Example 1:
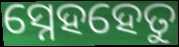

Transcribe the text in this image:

ସ୍ନେହହେତୁ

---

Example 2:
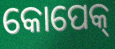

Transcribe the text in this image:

କୋପେକ୍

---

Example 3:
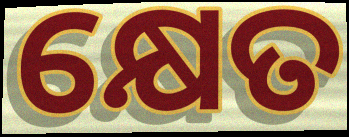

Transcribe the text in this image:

କ୍ଷେତ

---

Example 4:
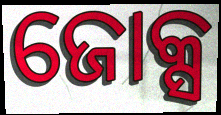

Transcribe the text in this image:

ଜୋକ୍ସ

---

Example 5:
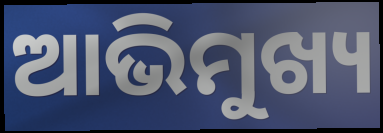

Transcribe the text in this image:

ଆଭିମୁଖ୍ୟ